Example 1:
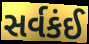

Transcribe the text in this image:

સર્વકંઈ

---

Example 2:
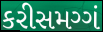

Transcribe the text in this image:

કરીસમગ્ગં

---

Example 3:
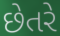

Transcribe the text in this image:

છેતરે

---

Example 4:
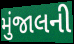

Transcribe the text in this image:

મુંજાલની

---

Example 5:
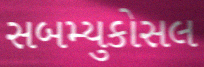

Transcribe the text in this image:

સબમ્યુકોસલ